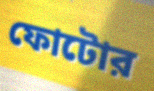
ফোটোর